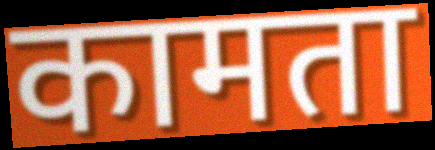
कामता